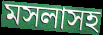
মসলাসহ